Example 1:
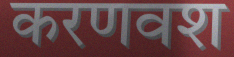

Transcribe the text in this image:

करणवश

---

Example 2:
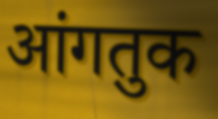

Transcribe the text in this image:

आंगतुक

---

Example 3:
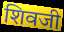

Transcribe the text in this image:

शिवजी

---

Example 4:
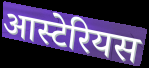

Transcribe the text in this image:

आस्टेरियस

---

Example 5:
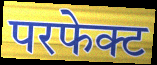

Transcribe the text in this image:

परफेक्ट